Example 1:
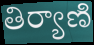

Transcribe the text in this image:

తిర్యాణి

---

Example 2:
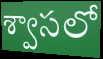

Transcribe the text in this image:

శ్వాసలో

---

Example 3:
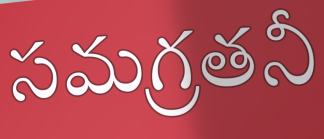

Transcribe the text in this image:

సమగ్రతనీ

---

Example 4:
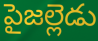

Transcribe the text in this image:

పైజల్లెడు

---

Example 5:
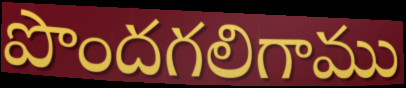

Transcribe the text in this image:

పొందగలిగాము